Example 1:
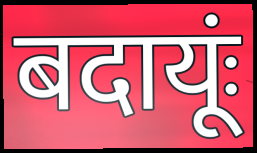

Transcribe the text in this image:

बदायूंः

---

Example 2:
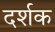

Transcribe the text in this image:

दर्शक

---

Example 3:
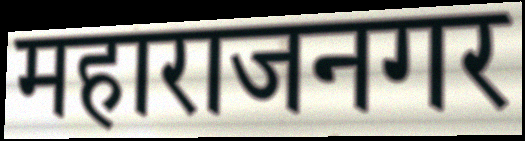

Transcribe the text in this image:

महाराजनगर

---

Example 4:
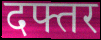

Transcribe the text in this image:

दफ्तर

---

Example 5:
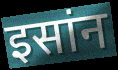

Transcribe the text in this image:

इसांन